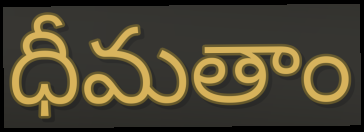
ధీమతాం